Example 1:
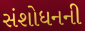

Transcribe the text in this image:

સંશોધનની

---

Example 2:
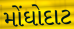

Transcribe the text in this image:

મોંઘોદાટ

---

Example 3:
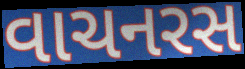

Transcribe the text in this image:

વાચનરસ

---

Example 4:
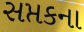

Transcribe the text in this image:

સપ્તકના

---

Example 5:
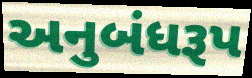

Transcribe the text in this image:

અનુબંધરૂપ